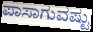
ಪಾಸಾಗುವಷ್ಟು